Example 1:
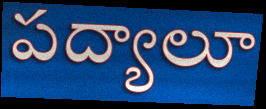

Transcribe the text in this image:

పద్యాలూ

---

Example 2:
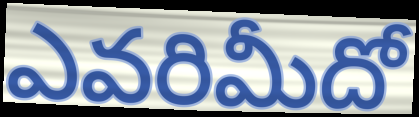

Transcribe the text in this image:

ఎవరిమీదో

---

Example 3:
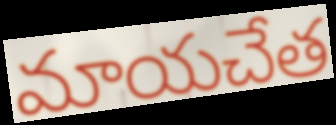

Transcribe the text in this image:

మాయచేత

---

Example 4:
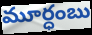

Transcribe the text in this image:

మూర్ధంబు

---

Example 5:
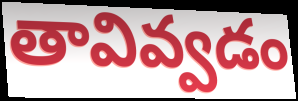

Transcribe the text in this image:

తావివ్వడం